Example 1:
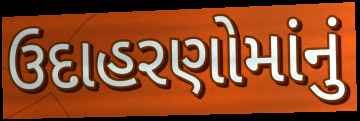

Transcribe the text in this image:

ઉદાહરણોમાંનું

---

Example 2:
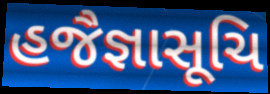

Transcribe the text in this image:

હજૈજ્ઞાસૂચિ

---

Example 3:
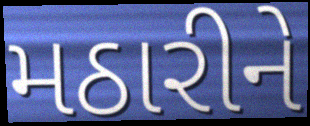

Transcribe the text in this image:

મઠારીને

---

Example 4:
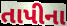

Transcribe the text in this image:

તાપીના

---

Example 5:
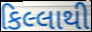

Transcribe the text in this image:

કિલ્લાથી